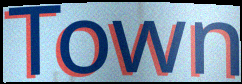
Town